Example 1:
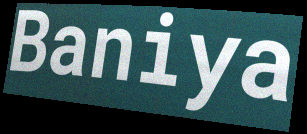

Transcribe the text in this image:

Baniya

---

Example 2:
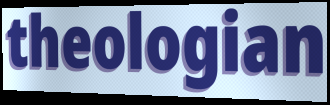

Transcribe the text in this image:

theologian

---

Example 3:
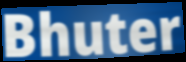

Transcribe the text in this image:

Bhuter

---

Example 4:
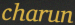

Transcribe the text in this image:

charun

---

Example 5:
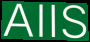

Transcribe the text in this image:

AIIS